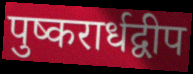
पुष्करार्धद्वीप